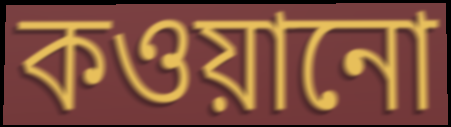
কওয়ানো